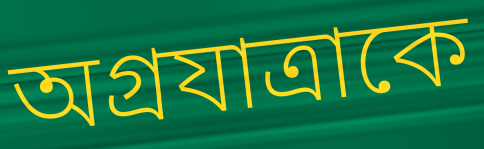
অগ্রযাত্রাকে